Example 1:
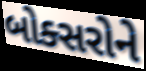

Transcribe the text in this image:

બોક્સરોને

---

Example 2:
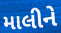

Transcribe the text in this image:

માલીને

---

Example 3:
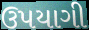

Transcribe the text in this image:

ઉપયાગી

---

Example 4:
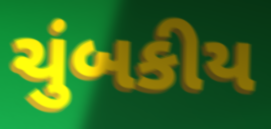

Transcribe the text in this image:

ચુંબકીય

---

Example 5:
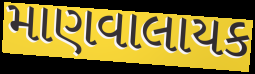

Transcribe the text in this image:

માણવાલાયક